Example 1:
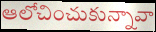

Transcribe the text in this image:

ఆలోచించుకున్నావా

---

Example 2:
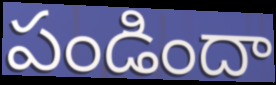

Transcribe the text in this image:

పండిందా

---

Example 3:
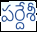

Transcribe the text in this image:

పర్దేశీ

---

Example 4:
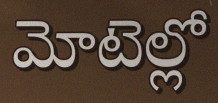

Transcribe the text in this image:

మోటెల్లో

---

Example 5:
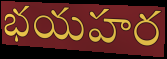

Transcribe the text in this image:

భయహర